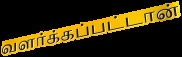
வளர்க்கப்பட்டான்